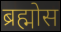
ब्रह्मोस